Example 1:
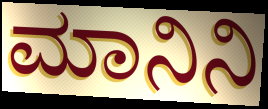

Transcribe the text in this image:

ಮಾನಿನಿ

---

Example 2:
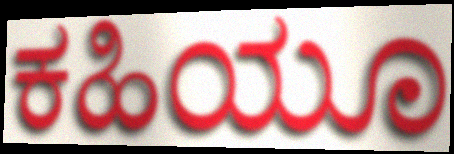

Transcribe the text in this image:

ಕಹಿಯೂ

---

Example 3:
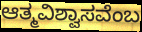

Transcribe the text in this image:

ಆತ್ಮವಿಶ್ವಾಸವೆಂಬ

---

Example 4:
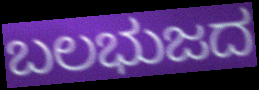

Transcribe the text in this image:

ಬಲಭುಜದ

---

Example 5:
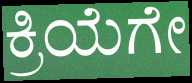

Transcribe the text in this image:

ಕ್ರಿಯೆಗೇ